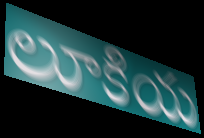
లూకియ